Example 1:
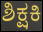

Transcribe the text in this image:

ಶಿಕ್ಷಕಿ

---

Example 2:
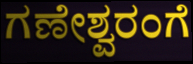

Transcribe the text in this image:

ಗಣೇಶ್ವರಂಗೆ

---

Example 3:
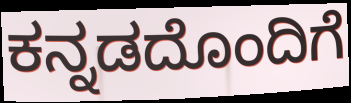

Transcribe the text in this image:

ಕನ್ನಡದೊಂದಿಗೆ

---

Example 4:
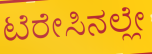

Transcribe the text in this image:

ಟೆರೇಸಿನಲ್ಲೇ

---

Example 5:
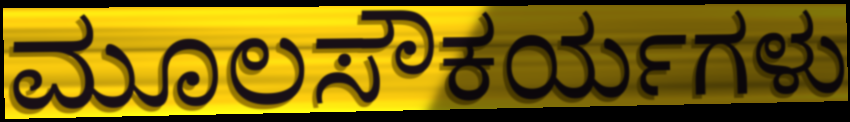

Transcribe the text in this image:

ಮೂಲಸೌಕರ್ಯಗಳು